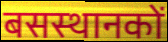
बसस्थानकों